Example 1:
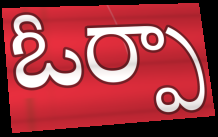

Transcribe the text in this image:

ఓర్పా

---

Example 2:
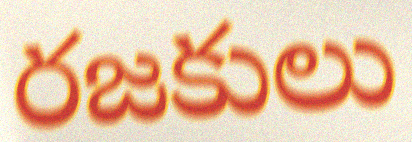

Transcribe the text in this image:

రజకులు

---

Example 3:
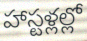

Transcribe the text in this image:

హాస్టళ్లల్లో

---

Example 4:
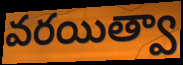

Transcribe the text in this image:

వరయిత్వా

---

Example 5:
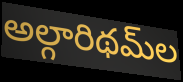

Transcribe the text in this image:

అల్గారిథమ్‌ల